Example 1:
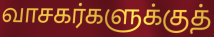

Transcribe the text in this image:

வாசகர்களுக்குத்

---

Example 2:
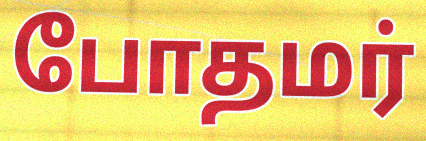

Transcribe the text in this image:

போதமர்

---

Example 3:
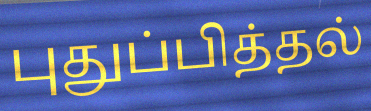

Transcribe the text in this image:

புதுப்பித்தல்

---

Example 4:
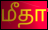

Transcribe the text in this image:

மீதா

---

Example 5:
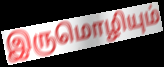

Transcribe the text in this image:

இருமொழியும்